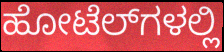
ಹೋಟೆಲ್‌ಗಳಲ್ಲಿ